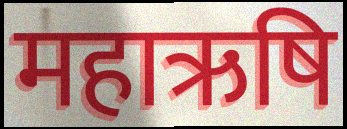
महाऋषि